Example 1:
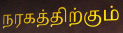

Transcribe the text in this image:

நரகத்திற்கும்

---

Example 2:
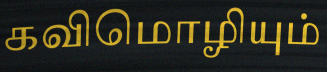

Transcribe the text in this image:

கவிமொழியும்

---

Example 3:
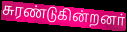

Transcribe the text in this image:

சுரண்டுகின்றனர்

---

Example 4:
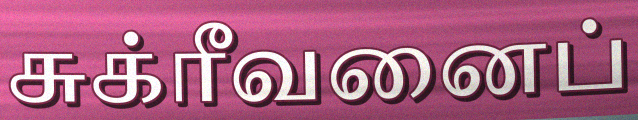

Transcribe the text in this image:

சுக்ரீவனைப்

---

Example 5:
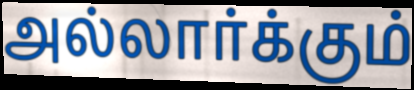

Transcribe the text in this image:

அல்லார்க்கும்